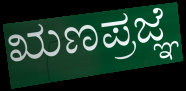
ಋಣಪ್ರಜ್ಞೆ